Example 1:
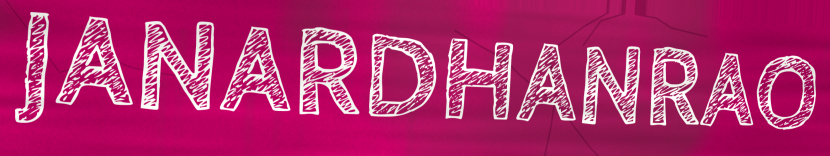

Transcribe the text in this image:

JANARDHANRAO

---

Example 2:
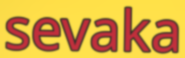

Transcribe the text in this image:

sevaka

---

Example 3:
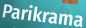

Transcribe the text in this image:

Parikrama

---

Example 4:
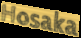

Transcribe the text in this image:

Hosaka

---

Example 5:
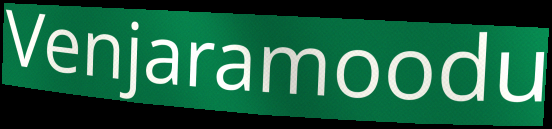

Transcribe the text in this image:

Venjaramoodu